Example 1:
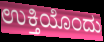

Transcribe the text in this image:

ಉಕ್ತಿಯೊಂದು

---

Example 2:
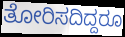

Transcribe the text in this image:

ತೋರಿಸದಿದ್ದರೂ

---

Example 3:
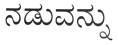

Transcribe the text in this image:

ನಡುವನ್ನು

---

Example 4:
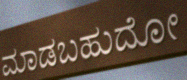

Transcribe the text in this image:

ಮಾಡಬಹುದೋ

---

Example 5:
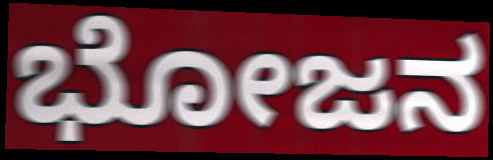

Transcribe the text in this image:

ಭೋಜನ